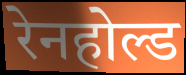
रेनहोल्ड